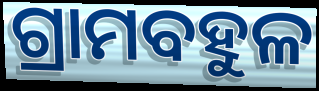
ଗ୍ରାମବହୁଳ